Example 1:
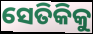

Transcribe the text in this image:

ସେତିକିକୁ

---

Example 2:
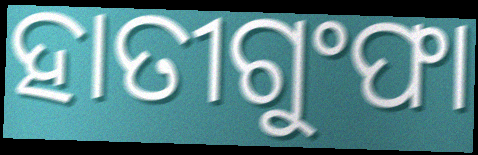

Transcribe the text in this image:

ହାତୀଗୁଂଫା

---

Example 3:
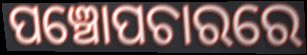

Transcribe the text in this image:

ପଞ୍ଚୋପଚାରରେ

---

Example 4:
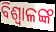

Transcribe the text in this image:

ବିଶ୍ୱାଳଙ୍କ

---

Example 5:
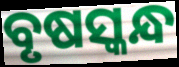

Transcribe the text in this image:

ବୃଷସ୍କନ୍ଧ